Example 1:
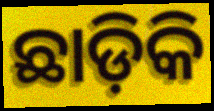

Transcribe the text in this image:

ଛାଡ଼ିକି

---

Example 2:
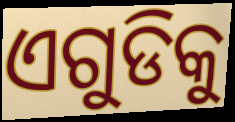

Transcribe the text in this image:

ଏଗୁଡିକୁ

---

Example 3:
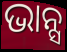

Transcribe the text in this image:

ଭାନ୍ସ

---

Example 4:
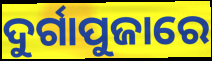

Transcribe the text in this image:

ଦୁର୍ଗାପୁଜାରେ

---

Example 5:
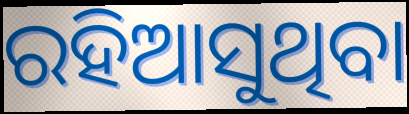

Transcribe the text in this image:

ରହିଆସୁଥିବା